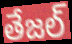
తేజల్